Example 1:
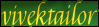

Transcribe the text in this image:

vivektailor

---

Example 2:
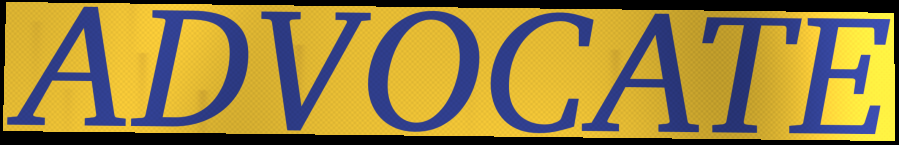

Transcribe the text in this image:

ADVOCATE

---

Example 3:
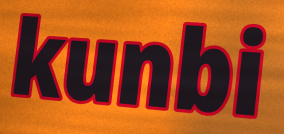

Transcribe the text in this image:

kunbi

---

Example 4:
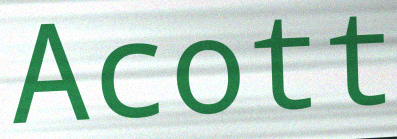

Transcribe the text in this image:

Acott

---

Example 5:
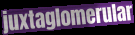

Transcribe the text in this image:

juxtaglomerular